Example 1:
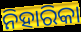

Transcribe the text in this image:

ନିହାରିକା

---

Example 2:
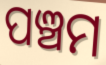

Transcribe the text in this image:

ପଞ୍ଚମ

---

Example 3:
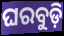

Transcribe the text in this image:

ଘରବୁଡ଼ି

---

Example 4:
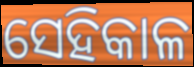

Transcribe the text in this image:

ସେହିକାଳ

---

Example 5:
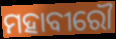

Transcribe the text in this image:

ମହାବୀରୌ